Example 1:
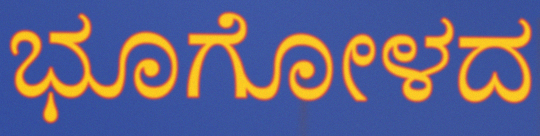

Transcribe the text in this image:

ಭೂಗೋಳದ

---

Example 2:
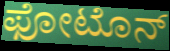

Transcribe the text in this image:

ಫೋಟೊನ್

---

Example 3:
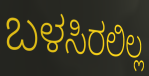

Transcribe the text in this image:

ಬಳಸಿರಲಿಲ್ಲ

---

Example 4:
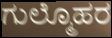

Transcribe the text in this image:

ಗುಲ್ಮೊಹರ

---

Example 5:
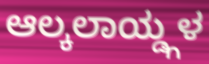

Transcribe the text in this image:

ಆಲ್ಕಲಾಯ್ಡ್ಗಳ